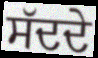
ਸੱਦਦੇ